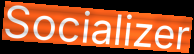
Socializer